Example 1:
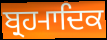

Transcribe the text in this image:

ਬ੍ਰਹ੍ਮਾਦਿਕ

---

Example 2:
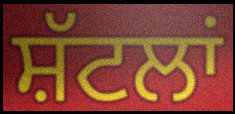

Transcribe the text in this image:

ਸ਼ੱਟਲਾਂ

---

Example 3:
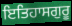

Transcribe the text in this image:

ਇਤਿਹਾਸਗੁਰੂ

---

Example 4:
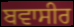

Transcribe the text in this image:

ਬਵਾਸੀਰ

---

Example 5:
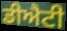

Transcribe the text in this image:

ਡੀਐਟੀ